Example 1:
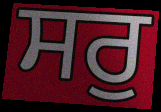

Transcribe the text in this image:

ਸਰੁ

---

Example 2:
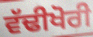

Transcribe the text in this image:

ਵੱਢੀਖੋਰੀ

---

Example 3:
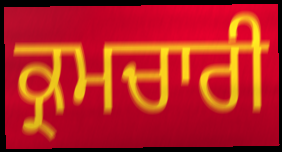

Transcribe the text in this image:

ਕ੍ਰਮਚਾਰੀ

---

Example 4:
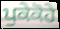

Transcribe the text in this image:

ਪੁਕੇਕੋਹੇ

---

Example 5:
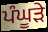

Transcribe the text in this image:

ਪੰਘੂੜੇ